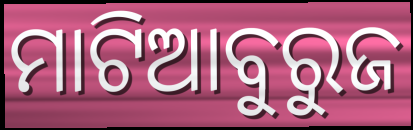
ମାଟିଆବୁରୁଜ